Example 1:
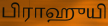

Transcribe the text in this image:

பிராஹுயி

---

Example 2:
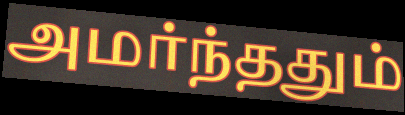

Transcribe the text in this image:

அமர்ந்ததும்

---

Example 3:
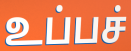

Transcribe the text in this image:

உப்பச்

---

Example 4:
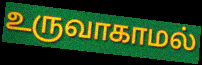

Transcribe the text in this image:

உருவாகாமல்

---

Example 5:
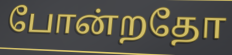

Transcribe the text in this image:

போன்றதோ